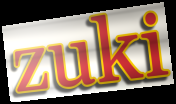
zuki